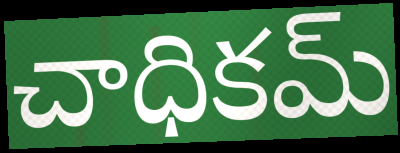
చాధికమ్